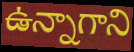
ఉన్నాగాని